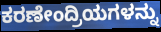
ಕರಣೇಂದ್ರಿಯಗಳನ್ನು